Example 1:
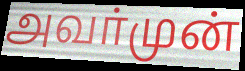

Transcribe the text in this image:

அவர்முன்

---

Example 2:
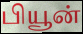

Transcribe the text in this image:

பியூன்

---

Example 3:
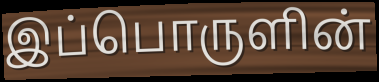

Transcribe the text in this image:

இப்பொருளின்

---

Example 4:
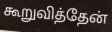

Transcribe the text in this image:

கூறுவித்தேன்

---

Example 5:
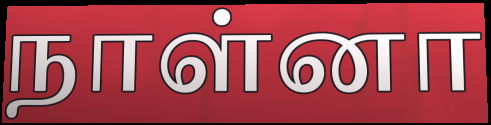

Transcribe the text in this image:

நாள்னா